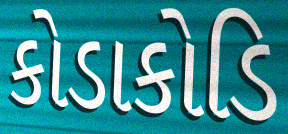
કોડાકોડિ